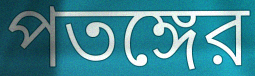
পতঙ্গের